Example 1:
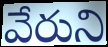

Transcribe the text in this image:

వేరుని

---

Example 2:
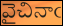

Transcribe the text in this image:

వైచినాఁ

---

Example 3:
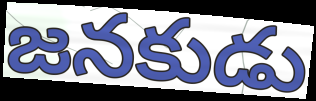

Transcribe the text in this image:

జనకుడు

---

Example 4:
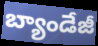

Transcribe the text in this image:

బ్యాండేజీ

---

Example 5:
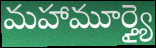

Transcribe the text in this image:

మహామూర్త్యై